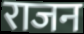
राजन